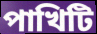
পাখিটি